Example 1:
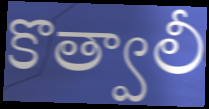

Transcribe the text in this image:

కొత్వాలీ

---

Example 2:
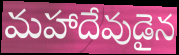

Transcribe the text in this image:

మహాదేవుడైన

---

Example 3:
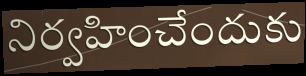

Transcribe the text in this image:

నిర్వహించేందుకు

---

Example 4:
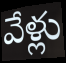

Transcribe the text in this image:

వేళ్లు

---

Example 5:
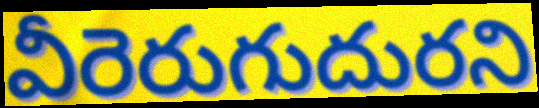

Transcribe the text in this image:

వీరెరుగుదురని